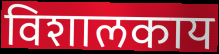
विशालकाय